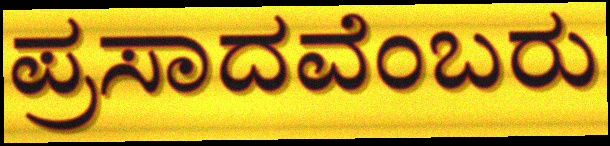
ಪ್ರಸಾದವೆಂಬರು